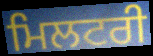
ਮਿਲਟਰੀ